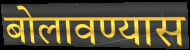
बोलावण्यास